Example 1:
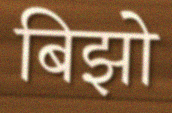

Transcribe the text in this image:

बिझो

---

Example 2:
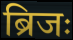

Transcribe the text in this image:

ब्रिजः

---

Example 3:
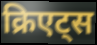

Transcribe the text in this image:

क्रिएट्स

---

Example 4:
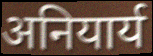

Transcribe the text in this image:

अनियार्य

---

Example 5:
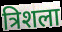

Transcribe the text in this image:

त्रिशला